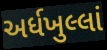
અર્ધખુલ્લાં